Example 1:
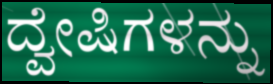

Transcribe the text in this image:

ದ್ವೇಷಿಗಳನ್ನು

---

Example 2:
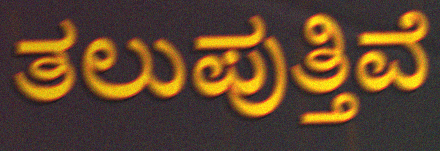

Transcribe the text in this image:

ತಲುಪುತ್ತಿವೆ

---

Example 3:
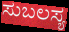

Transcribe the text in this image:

ಸುಬಲಸ್ಯ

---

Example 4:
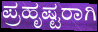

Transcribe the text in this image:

ಪ್ರಹೃಷ್ಟರಾಗಿ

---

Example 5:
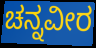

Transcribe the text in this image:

ಚನ್ನವೀರ